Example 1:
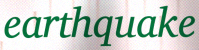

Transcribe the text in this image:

earthquake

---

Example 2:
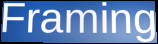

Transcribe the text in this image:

Framing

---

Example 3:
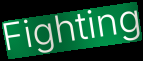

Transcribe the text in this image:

Fighting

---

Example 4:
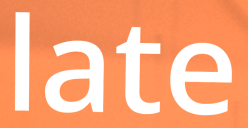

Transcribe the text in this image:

late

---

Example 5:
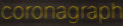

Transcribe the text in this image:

coronagraph